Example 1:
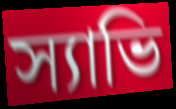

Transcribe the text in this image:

স্যাভি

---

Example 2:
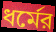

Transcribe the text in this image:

ধর্মের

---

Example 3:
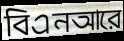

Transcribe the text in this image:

বিএনআরে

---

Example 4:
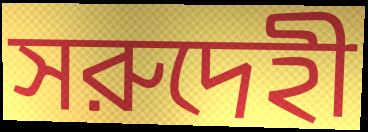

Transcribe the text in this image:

সরুদেহী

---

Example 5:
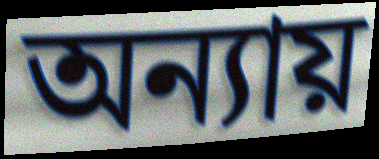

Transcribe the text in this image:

অন্যায়